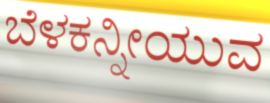
ಬೆಳಕನ್ನೀಯುವ